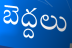
బెద్దలు